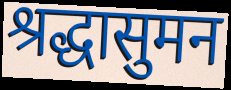
श्रद्धासुमन